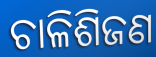
ଚାଳିଶିଜଣ